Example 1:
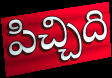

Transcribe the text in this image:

పిచ్చిది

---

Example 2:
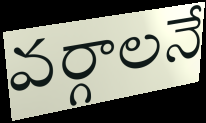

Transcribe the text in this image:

వర్గాలనే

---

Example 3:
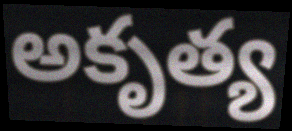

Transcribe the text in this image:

అకృత్య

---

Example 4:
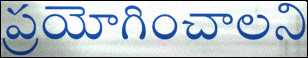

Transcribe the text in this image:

ప్రయోగించాలని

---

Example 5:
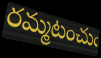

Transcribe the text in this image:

రమ్మటంచుఁ